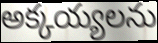
అక్కయ్యలను